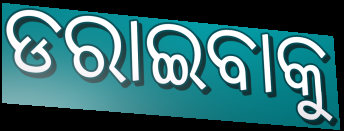
ଡରାଇବାକୁ